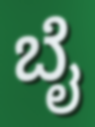
ಬೈ